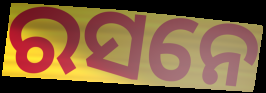
ରସନେ